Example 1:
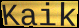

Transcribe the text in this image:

Kaik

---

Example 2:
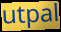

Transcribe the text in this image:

utpal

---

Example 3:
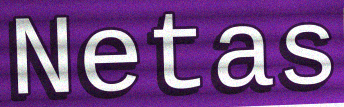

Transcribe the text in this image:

Netas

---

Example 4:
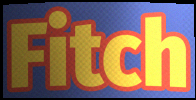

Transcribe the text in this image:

Fitch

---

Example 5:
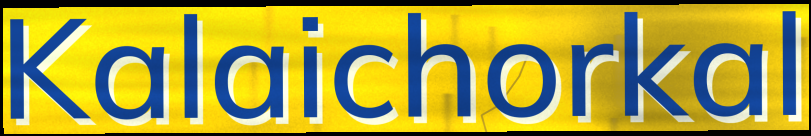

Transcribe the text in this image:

Kalaichorkal